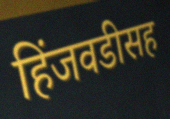
हिंजवडीसह